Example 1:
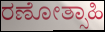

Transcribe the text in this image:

ರಣೋತ್ಸಾಹಿ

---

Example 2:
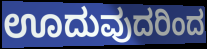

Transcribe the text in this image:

ಊದುವುದರಿಂದ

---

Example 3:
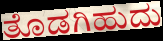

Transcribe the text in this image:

ತೊಡಗಿಹುದು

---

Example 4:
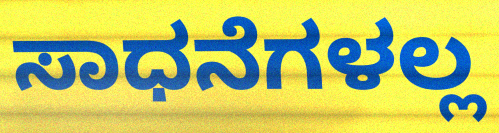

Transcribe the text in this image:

ಸಾಧನೆಗಳಲ್ಲ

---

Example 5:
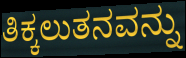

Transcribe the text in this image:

ತಿಕ್ಕಲುತನವನ್ನು